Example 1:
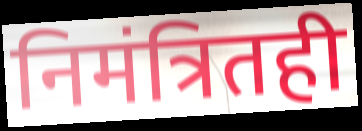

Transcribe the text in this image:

निमंत्रितही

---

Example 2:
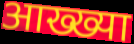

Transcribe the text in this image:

आख्ख्या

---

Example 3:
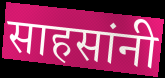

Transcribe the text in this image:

साहसांनी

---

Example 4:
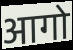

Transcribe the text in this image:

आगो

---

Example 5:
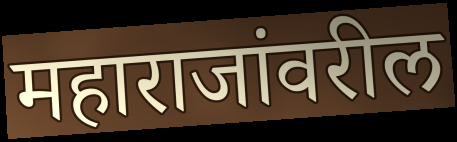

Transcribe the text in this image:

महाराजांवरील